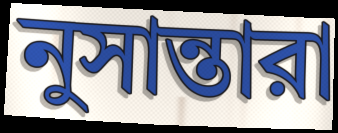
নুসান্তারা